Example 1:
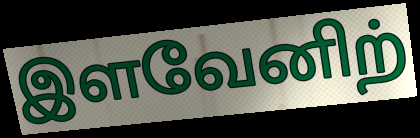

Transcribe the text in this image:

இளவேனிற்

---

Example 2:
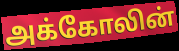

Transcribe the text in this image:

அக்கோலின்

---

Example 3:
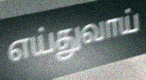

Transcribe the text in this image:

எய்துவாய்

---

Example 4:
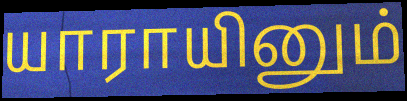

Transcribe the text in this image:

யாராயினும்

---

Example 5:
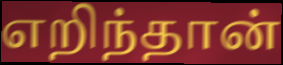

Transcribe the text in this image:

எறிந்தான்